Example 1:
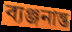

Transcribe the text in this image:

ব্যঞ্জনান্ত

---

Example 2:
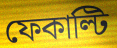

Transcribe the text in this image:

ফেকাল্টি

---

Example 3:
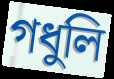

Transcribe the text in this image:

গধুলি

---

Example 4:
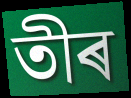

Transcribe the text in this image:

তীৰ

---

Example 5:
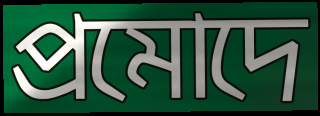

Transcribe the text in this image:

প্ৰমোদে